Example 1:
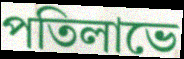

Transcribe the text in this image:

পতিলাভে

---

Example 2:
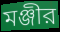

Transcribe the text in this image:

মঞ্জীর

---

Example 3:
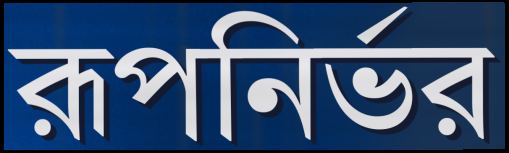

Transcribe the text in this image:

রূপনির্ভর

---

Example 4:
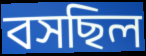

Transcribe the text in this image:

বসছিল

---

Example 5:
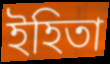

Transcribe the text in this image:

ইহিতা